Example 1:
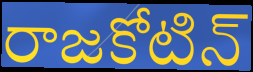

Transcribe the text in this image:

రాజకోటిన్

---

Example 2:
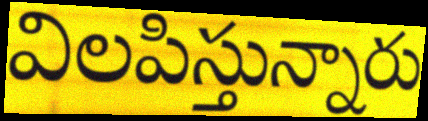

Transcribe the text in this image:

విలపిస్తున్నారు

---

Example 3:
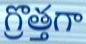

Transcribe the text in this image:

గ్రొత్తగా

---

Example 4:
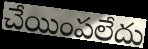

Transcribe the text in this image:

చేయింపలేదు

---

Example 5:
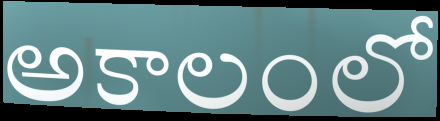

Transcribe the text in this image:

అకాలంలో